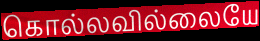
கொல்லவில்லையே